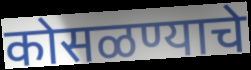
कोसळण्याचे